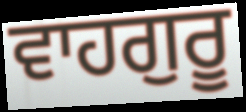
ਵਾਹਗੁਰੂ